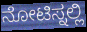
ನೋಟಿಸ್ನಲ್ಲಿ